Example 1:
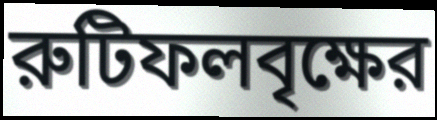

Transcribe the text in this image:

রুটিফলবৃক্ষের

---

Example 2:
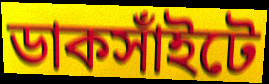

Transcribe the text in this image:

ডাকসাঁইটে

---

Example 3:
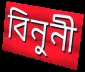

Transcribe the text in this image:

বিনুনী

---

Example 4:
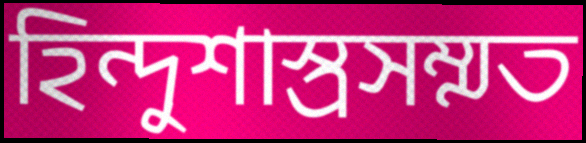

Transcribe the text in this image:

হিন্দুশাস্ত্রসম্মত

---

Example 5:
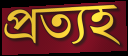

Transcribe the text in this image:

প্রত্যহ